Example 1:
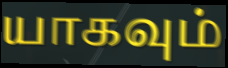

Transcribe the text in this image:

யாகவும்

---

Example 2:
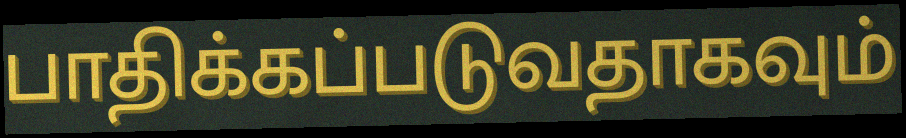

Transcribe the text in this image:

பாதிக்கப்படுவதாகவும்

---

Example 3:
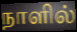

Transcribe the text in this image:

நாளில்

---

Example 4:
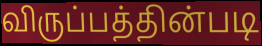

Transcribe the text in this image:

விருப்பத்தின்படி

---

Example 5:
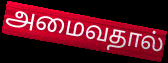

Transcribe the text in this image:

அமைவதால்